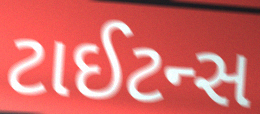
ટાઈટન્સ